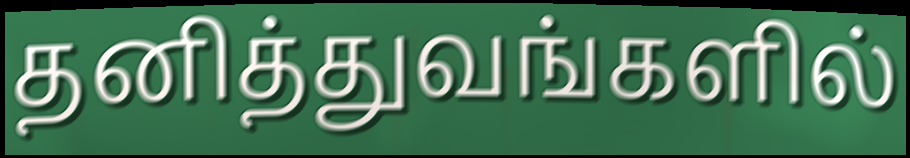
தனித்துவங்களில்